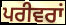
ਪਰੀਵਰਾਂ